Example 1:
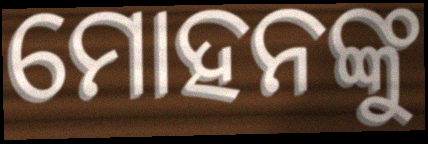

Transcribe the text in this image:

ମୋହନଙ୍କୁ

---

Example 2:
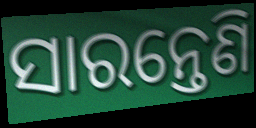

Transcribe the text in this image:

ସାରନ୍ତେଣି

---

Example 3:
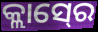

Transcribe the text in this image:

କ୍ଲାସ୍‍ରେ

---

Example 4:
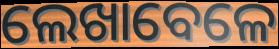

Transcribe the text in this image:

ଲେଖାବେଳେ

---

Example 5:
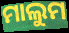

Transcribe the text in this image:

ମାଲୁମ